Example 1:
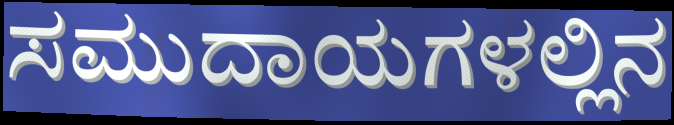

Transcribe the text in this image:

ಸಮುದಾಯಗಳಲ್ಲಿನ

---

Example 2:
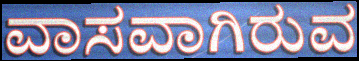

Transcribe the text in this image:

ವಾಸವಾಗಿರುವ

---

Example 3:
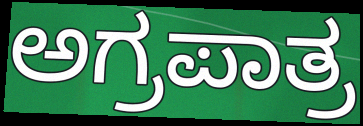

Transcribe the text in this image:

ಅಗ್ರಪಾತ್ರ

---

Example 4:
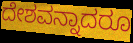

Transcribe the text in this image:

ದೇಶವನ್ನಾದರೂ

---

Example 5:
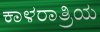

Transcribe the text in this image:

ಕಾಳರಾತ್ರಿಯ